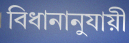
বিধানানুযায়ী